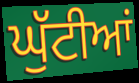
ਘੁੱਟੀਆਂ